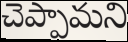
చెప్పామని